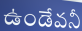
ఉండేవనీ